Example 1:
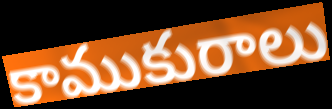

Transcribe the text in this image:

కాముకురాలు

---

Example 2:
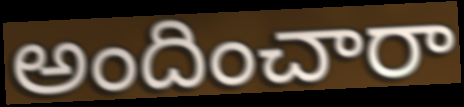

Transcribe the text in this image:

అందించారా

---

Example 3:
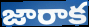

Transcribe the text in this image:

జారాక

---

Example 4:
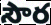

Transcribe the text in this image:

సౌర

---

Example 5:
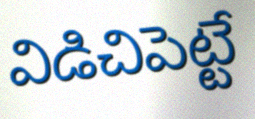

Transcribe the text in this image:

విడిచిపెట్టే